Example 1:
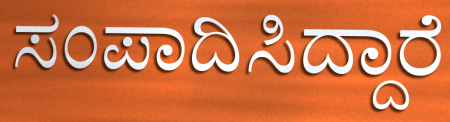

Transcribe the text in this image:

ಸಂಪಾದಿಸಿದ್ದಾರೆ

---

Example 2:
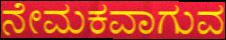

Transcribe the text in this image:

ನೇಮಕವಾಗುವ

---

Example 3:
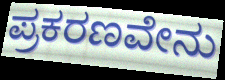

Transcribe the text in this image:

ಪ್ರಕರಣವೇನು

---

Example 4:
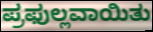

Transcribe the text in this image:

ಪ್ರಫುಲ್ಲವಾಯಿತು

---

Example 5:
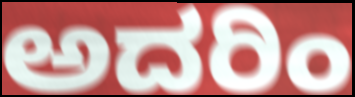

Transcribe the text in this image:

ಅದರಿಂ